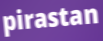
pirastan